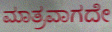
ಮಾತ್ರವಾಗದೇ